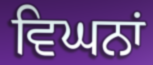
ਵਿਘਨਾਂ